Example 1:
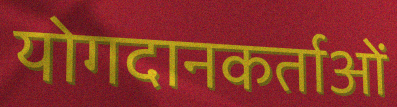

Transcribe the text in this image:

योगदानकर्ताओं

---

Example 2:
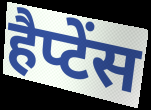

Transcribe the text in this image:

हैप्टेंस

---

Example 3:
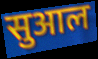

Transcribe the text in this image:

सुआल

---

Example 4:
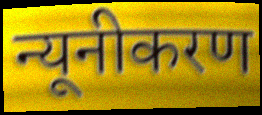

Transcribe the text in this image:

न्यूनीकरण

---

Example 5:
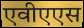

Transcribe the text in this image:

एवीएएस